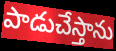
పాడుచేస్తాను